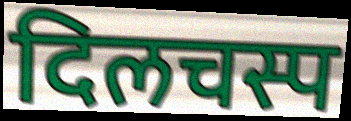
दिलचस्प